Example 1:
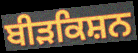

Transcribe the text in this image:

ਬੀੜਕਿਸ਼ਨ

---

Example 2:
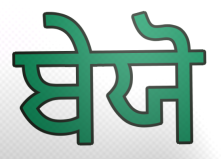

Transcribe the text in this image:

ਬੇਯੋ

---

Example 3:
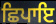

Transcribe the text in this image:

ਛਿਪਾਇ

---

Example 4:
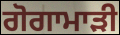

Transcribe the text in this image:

ਗੋਗਾਮਾੜੀ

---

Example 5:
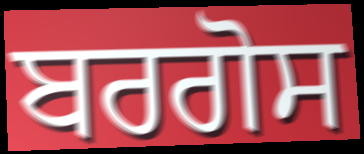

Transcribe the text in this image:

ਬਰਗੋਸ